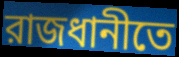
রাজধানীতে